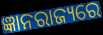
ଜ୍ଞାନରାଜ୍ୟରେ